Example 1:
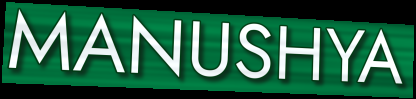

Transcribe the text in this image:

MANUSHYA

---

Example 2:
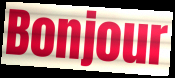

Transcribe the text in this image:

Bonjour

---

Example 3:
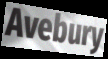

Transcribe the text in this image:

Avebury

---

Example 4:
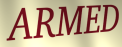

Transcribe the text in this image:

ARMED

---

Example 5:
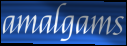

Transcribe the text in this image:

amalgams